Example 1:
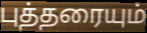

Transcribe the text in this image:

புத்தரையும்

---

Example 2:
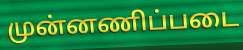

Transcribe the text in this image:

முன்னணிப்படை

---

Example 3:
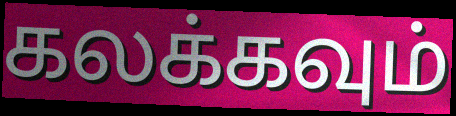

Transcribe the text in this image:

கலக்கவும்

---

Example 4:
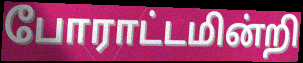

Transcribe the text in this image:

போராட்டமின்றி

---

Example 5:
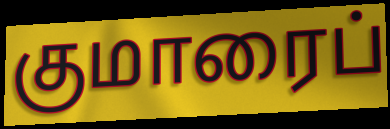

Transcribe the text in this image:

குமாரைப்